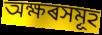
অক্ষৰসমূহ